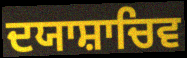
ਦਯਾਸ਼ਾਚਿਵ